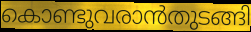
കൊണ്ടുവരാൻതുടങ്ങി